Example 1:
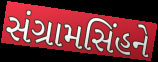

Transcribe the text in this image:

સંગ્રામસિંહને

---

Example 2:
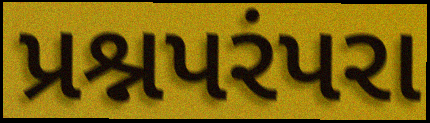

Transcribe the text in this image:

પ્રશ્નપરંપરા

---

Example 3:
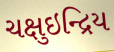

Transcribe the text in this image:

ચક્ષુઇન્દ્રિય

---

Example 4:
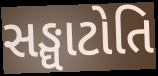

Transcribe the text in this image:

સઙ્ઘાટોતિ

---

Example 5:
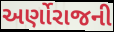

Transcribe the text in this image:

અર્ણોરાજની